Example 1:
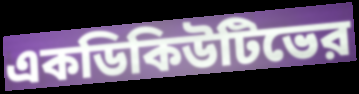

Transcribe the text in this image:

একডিকিউটিভের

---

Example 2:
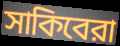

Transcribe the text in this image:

সাকিবেরা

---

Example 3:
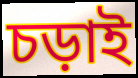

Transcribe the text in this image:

চড়াই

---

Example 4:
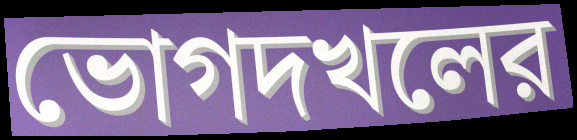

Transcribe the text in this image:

ভোগদখলের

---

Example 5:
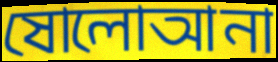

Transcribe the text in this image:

ষোলোআনা